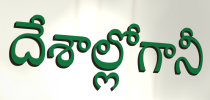
దేశాల్లోగానీ